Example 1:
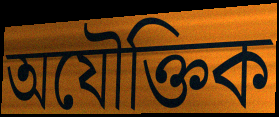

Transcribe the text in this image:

অযৌক্তিক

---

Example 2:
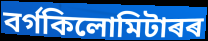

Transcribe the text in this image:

বৰ্গকিলোমিটাৰৰ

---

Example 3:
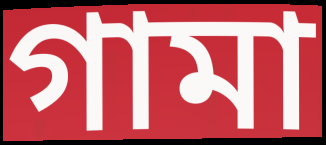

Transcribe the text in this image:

গামা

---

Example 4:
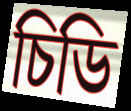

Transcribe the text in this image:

চিডি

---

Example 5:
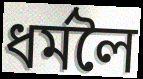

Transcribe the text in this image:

ধৰ্মলৈ